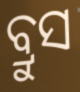
ବ୍ରୁସ